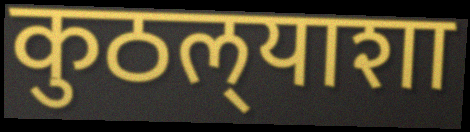
कुठल्याशा